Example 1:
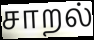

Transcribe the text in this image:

சாறல்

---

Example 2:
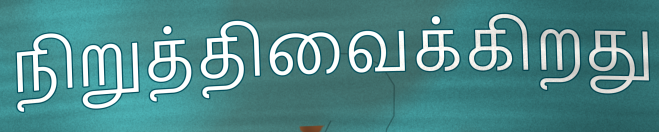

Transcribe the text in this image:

நிறுத்திவைக்கிறது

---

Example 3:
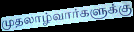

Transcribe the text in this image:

முதலாழ்வார்களுக்கு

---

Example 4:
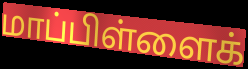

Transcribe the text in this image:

மாப்பிள்ளைக்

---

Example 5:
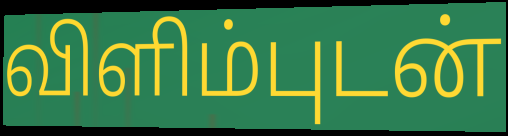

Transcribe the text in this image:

விளிம்புடன்